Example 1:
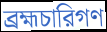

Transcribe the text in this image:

ব্রহ্মচারিগণ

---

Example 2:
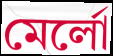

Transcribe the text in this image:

মের্লো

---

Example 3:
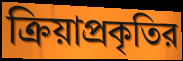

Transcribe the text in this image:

ক্রিয়াপ্রকৃতির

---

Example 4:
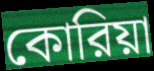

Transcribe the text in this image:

কোরিয়া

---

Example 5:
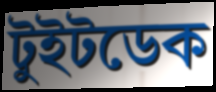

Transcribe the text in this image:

টুইটডেক